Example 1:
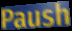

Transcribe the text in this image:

Paush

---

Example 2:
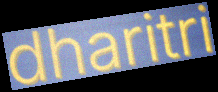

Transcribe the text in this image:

dharitri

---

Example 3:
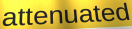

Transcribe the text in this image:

attenuated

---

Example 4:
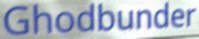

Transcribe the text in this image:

Ghodbunder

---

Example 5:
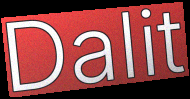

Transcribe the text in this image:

Dalit